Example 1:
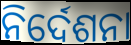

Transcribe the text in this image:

ନିର୍ଦେଶନା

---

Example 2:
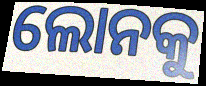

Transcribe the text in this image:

ଲୋନକୁ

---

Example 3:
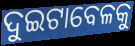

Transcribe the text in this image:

ଦୁଇଟାବେଳକୁ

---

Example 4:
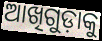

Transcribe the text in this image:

ଆଖିଗୁଡ଼ାକୁ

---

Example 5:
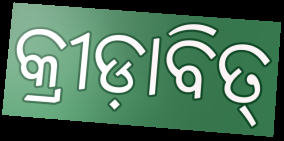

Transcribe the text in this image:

କ୍ରୀଡ଼ାବିତ୍